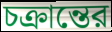
চক্রান্তের